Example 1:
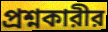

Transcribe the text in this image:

প্রশ্নকারীর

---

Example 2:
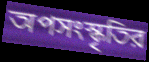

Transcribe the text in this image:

অপসংস্কৃতির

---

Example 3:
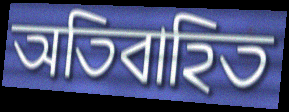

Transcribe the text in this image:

অতিবাহিত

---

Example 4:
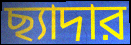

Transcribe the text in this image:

ছ্যাদার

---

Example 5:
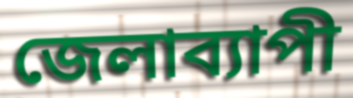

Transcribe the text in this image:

জেলাব্যাপী